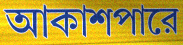
আকাশপারে